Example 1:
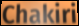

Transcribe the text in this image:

Chakiri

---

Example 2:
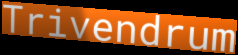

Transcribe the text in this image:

Trivendrum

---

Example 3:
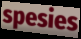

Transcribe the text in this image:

spesies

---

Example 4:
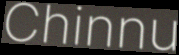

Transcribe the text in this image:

Chinnu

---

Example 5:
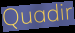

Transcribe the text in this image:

Quadir